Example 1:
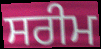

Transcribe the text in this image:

ਸਰੀਮ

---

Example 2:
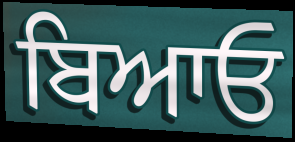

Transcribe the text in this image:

ਬਿਆਓ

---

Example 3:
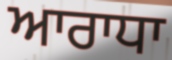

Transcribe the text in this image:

ਆਰਾਧਾ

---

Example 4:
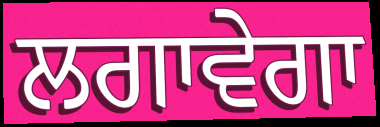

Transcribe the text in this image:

ਲਗਾਵੇਗਾ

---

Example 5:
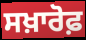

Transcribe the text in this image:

ਸਖ਼ਾਰੋਫ਼